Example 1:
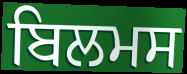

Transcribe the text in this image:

ਬਿਲਮਸ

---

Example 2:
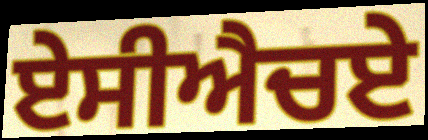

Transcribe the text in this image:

ਏਸੀਐਚਏ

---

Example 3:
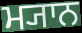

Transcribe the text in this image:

ਮ੍ਯਾਨ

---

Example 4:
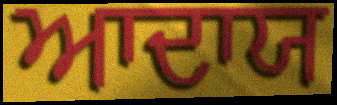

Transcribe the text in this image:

ਆਦਾਯ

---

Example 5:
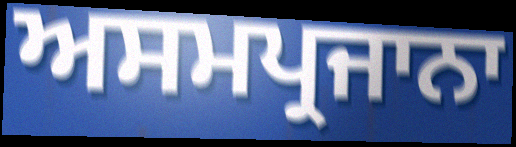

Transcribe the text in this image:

ਅਸਮਪ੍ਰਜਾਨਾ